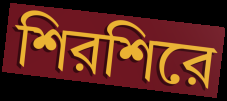
শিরশিরে